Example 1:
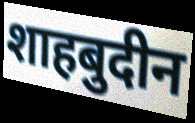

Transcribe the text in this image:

शाहबुदीन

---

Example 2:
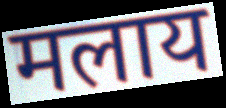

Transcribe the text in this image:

मलाय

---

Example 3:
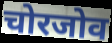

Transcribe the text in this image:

चोरजोव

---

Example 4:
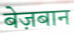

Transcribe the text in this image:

बेज़बान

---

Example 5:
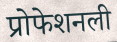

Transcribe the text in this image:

प्रोफेशनली